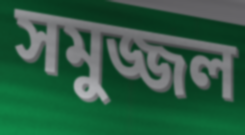
সমুজ্জল